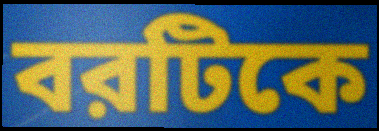
বরটিকে